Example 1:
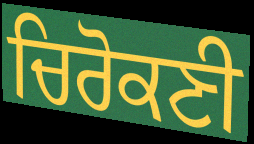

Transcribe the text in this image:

ਚਿਰੋਕਣੀ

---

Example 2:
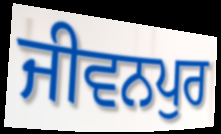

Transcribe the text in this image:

ਜੀਵਨਪੁਰ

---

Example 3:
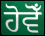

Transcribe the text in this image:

ਹੋਵੋਁ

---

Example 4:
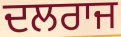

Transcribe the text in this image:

ਦਲਰਾਜ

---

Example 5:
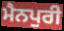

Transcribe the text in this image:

ਮੈਨਪੁਰੀ